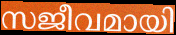
സജീവമായി